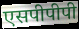
एसपीपीपी